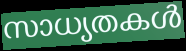
സാധ്യതകൾ